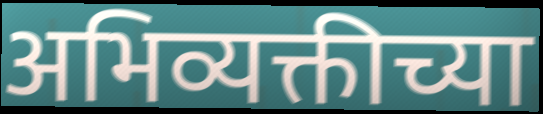
अभिव्यक्तीच्या